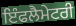
ਇੰਫਲੈਮੇਟਰੀ